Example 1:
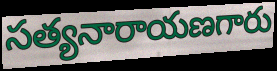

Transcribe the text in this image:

సత్యనారాయణగారు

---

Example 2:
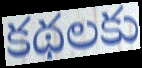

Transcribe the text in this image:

కథలకు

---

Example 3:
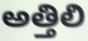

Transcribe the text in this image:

అత్తిలి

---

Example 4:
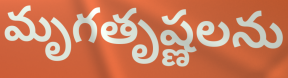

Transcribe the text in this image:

మృగతృష్ణలను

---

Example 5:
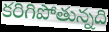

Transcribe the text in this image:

కరిగిపోతున్నది